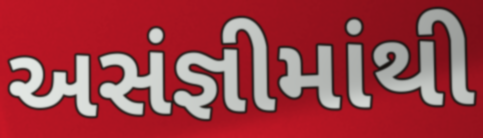
અસંજ્ઞીમાંથી